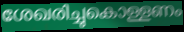
ശേഖരിച്ചുകൊള്ളണം